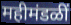
महीमंडळीं